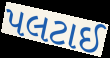
પલટાઈ